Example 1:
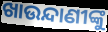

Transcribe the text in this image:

ଖାଉନ୍ଦାଣୀଙ୍କୁ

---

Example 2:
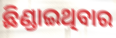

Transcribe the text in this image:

ଛିଣ୍ଡାଇଥିବାର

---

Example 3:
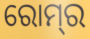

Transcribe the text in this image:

ରୋମ୍‍ର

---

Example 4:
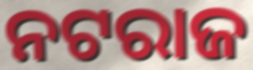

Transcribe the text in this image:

ନଟରାଜ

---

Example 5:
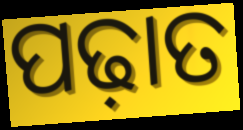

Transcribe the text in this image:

ପଢ଼ାତ